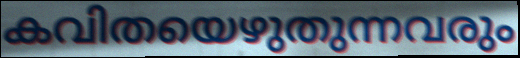
കവിതയെഴുതുന്നവരും